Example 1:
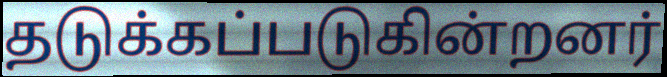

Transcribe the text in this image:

தடுக்கப்படுகின்றனர்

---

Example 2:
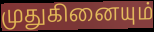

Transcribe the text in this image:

முதுகினையும்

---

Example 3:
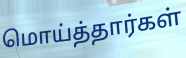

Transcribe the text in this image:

மொய்த்தார்கள்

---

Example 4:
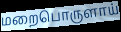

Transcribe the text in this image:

மறைபொருளாய்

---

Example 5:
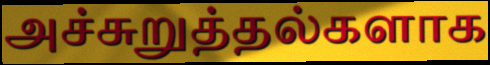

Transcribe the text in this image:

அச்சுறுத்தல்களாக